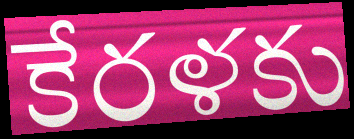
కేరళకు